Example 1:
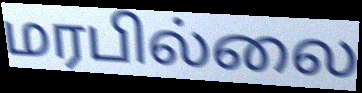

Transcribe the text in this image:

மரபில்லை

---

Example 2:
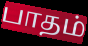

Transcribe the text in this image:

பாதம்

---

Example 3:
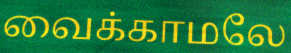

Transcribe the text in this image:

வைக்காமலே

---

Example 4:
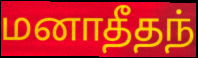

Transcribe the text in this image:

மனாதீதந்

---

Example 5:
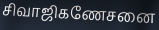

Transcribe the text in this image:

சிவாஜிகணேசனை